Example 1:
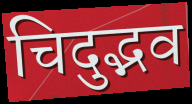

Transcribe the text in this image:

चिदुद्भव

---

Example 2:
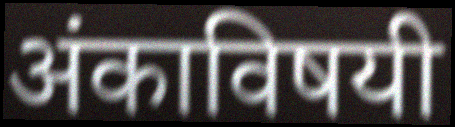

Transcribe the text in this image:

अंकाविषयी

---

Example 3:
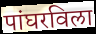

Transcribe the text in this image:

पांघरविला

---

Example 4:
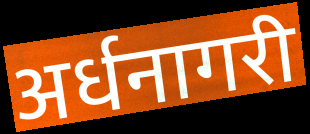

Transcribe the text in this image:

अर्धनागरी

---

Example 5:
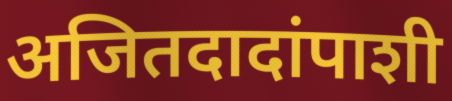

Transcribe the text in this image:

अजितदादांपाशी